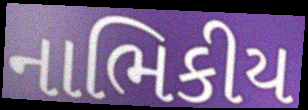
નાભિકીય